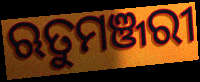
ଋତୁମଞ୍ଜରୀ